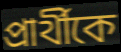
প্রার্থীকে